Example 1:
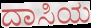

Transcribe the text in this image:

ದಾಸಿಯ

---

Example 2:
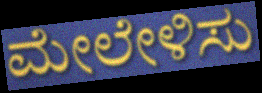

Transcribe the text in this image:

ಮೇಲೇಳಿಸು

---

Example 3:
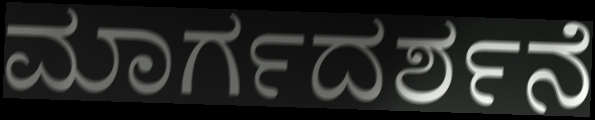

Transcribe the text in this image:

ಮಾರ್ಗದರ್ಶನೆ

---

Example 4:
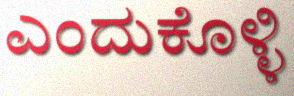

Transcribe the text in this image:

ಎಂದುಕೊಳ್ಳಿ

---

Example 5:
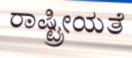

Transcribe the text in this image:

ರಾಷ್ಟ್ರೀಯತೆ